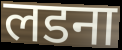
लडना